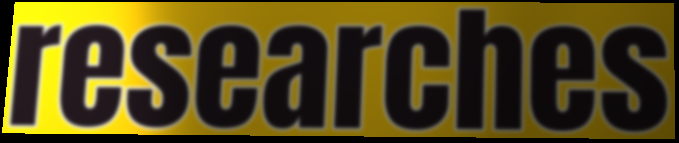
researches